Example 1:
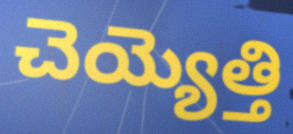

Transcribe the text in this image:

చెయ్యెత్తి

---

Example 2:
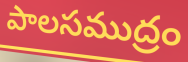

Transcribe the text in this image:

పాలసముద్రం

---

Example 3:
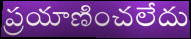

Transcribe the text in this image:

ప్రయాణించలేదు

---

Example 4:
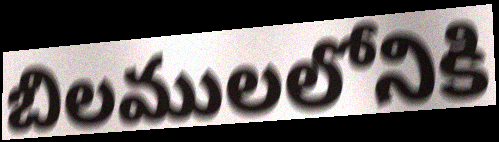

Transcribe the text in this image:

బిలములలోనికి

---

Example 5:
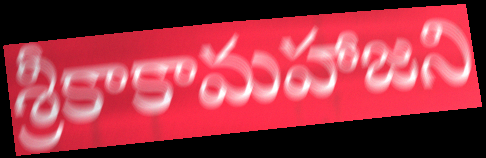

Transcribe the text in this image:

శ్రీకాకామహాజని